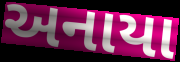
અનાયા